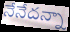
నేనేదన్నా